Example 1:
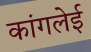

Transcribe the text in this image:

कांगलेई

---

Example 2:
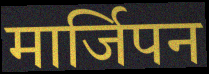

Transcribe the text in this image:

मार्जिपन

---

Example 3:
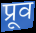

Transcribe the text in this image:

प्रूव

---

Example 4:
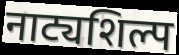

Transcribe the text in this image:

नाट्यशिल्प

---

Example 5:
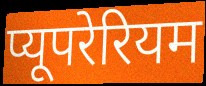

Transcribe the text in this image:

प्यूपरेरियम